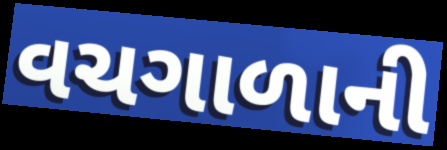
વચગાળાની